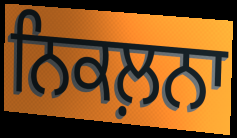
ਨਿਕਲ਼ਨਾ